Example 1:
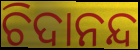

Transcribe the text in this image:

ଚିଦାନନ୍ଦ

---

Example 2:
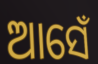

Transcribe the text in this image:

ଆସେଁ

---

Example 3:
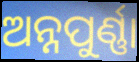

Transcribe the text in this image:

ଅନ୍ନପୁର୍ଣ୍ଣା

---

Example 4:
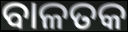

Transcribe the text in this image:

ବାଳତକ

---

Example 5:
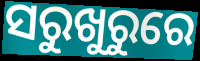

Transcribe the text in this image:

ସରୁଖୁରୁରେ